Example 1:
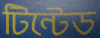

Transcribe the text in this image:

টিন্টেড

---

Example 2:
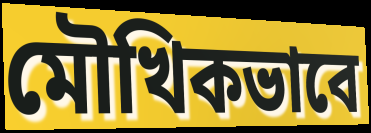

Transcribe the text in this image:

মৌখিকভাবে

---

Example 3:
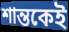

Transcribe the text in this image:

শান্তকেই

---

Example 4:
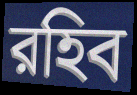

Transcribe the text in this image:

রহিব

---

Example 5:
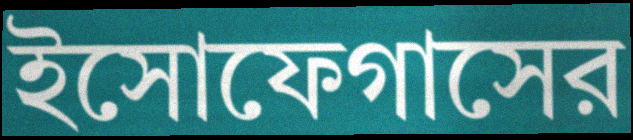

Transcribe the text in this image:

ইসোফেগাসের